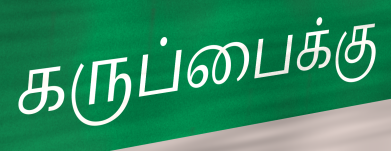
கருப்பைக்கு